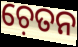
ଚ଼େତନ